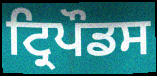
ਟ੍ਰਿਪੌਡਸ